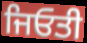
ਜਿਓਤੀ